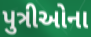
પુત્રીઓના